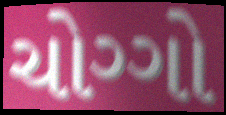
ચોગ્ગો